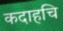
कदाहचि